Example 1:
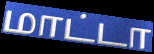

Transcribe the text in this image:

மாட்டா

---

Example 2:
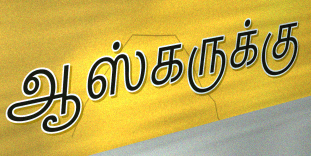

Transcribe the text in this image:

ஆஸ்கருக்கு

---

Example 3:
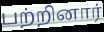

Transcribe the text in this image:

பற்றினார்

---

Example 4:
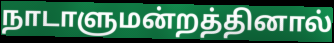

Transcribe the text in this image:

நாடாளுமன்றத்தினால்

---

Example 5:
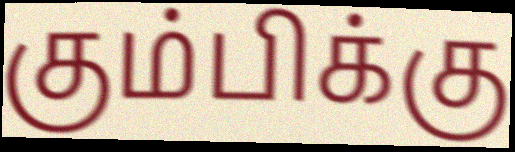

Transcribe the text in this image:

கும்பிக்கு